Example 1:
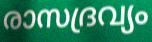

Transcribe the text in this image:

രാസദ്രവ്യം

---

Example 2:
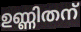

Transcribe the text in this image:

ഉണ്ണിതന്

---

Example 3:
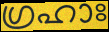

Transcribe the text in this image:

ഗ്രഹാഃ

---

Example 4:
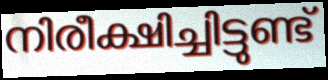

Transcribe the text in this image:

നിരീക്ഷിച്ചിട്ടുണ്ട്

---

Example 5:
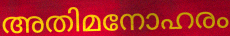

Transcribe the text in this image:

അതിമനോഹരം